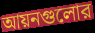
আয়নগুলোর